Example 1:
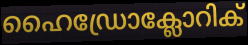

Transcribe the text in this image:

ഹൈഡ്രോക്ലോറിക്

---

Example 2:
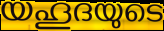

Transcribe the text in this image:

യഹൂദയുടെ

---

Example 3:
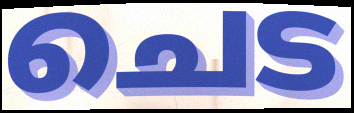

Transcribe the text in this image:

ചെട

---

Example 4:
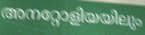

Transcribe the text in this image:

അനറ്റോളിയയിലും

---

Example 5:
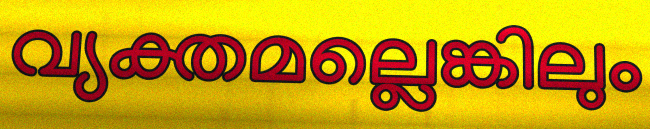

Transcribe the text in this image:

വ്യക്തമല്ലെങ്കിലും